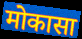
मोकासा